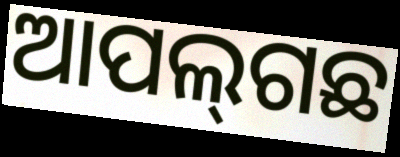
ଆପଲ୍‍ଗଛ